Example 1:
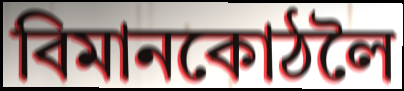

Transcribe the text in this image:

বিমানকোঠলৈ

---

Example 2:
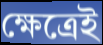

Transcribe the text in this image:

ক্ষেত্ৰেই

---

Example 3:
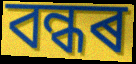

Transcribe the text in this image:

বন্ধৰ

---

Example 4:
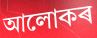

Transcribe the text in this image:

আলোকৰ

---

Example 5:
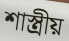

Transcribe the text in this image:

শাস্ত্ৰীয়